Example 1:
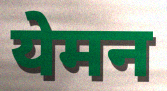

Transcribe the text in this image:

येमन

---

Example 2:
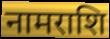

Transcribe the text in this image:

नामराशि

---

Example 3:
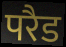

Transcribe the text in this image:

परैड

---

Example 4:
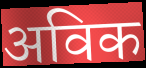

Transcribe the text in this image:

अविक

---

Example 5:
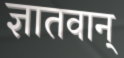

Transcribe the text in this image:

ज्ञातवान्